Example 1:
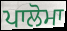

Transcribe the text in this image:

ਪਾਲੋਮਾ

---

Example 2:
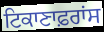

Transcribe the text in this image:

ਟਿਕਾਣਾਫ਼ਰਾਂਸ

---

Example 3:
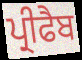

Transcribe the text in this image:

ਪ੍ਰੀਫੈਬ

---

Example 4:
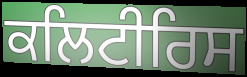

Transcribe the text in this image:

ਕਲਿਟੀਰਿਸ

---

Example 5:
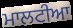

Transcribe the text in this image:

ਮਾਲਟੀਆ